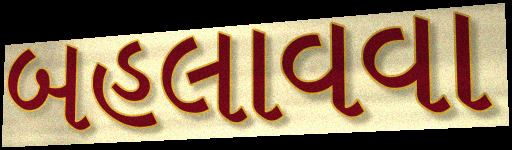
બહલાવવા